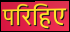
परिहिए